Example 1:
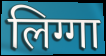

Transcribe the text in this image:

लिग्गा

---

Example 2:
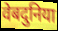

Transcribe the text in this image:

वेबदुनिया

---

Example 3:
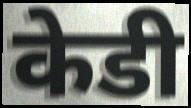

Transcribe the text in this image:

केडी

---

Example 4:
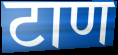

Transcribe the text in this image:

टाण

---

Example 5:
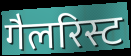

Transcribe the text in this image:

गैलरिस्ट